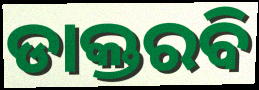
ଡାକ୍ତରବି